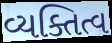
વ્યક્તિત્વ